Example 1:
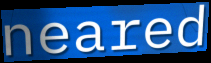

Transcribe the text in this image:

neared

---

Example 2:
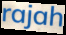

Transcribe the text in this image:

rajah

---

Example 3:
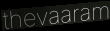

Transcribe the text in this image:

thevaaram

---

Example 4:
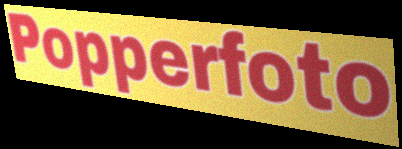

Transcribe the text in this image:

Popperfoto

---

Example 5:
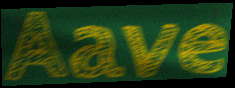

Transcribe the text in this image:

Aave